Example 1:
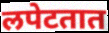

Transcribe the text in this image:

लपेटतात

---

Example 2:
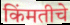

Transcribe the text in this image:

किंमतीचे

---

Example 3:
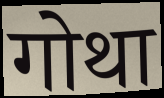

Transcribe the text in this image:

गोथा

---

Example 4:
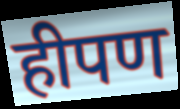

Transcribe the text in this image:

हीपण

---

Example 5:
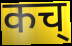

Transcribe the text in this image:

कच्